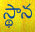
స్థాన